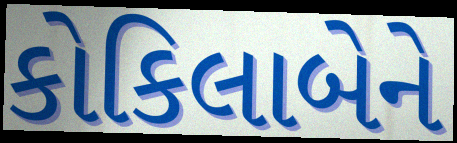
કોકિલાબેને